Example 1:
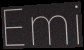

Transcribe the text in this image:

Emi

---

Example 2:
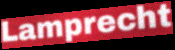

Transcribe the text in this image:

Lamprecht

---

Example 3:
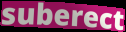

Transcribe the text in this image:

suberect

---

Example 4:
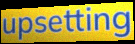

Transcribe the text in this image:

upsetting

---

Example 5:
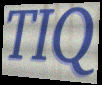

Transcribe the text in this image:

TIQ